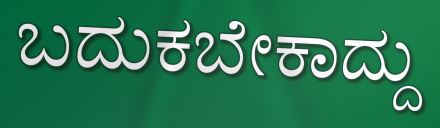
ಬದುಕಬೇಕಾದ್ದು